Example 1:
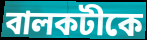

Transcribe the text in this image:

বালকটীকে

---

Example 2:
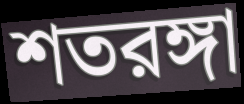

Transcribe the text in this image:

শতরঙ্গা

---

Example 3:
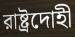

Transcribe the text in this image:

রাষ্ট্রদোহী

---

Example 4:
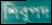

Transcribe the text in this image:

শিবুপদ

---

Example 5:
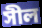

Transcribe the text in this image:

সীল